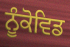
ਨੂੰਕੋਵਿਡ